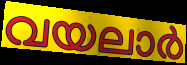
വയലാർ